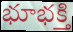
భూభక్తి